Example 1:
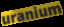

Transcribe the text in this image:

uranium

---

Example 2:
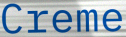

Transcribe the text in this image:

Creme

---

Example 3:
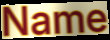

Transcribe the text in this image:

Name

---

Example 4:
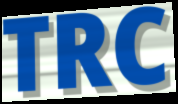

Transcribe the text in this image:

TRC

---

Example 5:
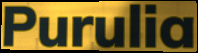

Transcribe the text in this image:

Purulia